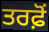
ਤਰਫ਼ੋਂ